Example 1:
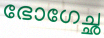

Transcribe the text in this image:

ഭോഗേച്ഛ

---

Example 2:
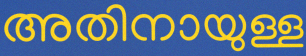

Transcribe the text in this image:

അതിനായുള്ള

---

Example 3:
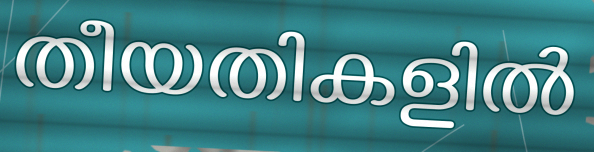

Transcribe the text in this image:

തീയതികളിൽ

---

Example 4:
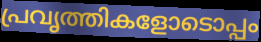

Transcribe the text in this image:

പ്രവൃത്തികളോടൊപ്പം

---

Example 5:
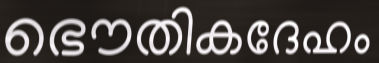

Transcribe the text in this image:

ഭൌതികദേഹം